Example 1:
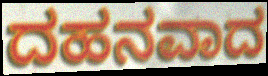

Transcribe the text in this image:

ದಹನವಾದ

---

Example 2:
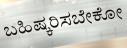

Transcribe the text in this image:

ಬಹಿಷ್ಕರಿಸಬೇಕೋ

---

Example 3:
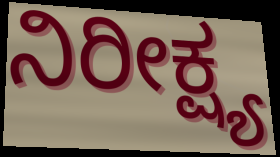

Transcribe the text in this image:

ನಿರೀಕ್ಷ್ಯ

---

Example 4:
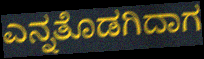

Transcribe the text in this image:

ಎನ್ನತೊಡಗಿದಾಗ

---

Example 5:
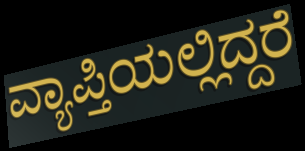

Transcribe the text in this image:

ವ್ಯಾಪ್ತಿಯಲ್ಲಿದ್ದರೆ